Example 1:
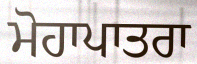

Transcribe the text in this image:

ਮੋਹਾਪਾਤਰਾ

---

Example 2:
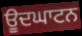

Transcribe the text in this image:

ਊਦਘਾਟਨ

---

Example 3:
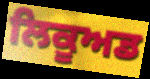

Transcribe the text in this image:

ਲਿਕੂਅਡ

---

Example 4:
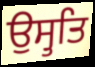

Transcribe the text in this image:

ਉਸ੍ਤਤਿ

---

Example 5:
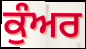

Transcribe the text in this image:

ਕੁੰਅਰ